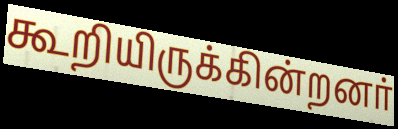
கூறியிருக்கின்றனர்